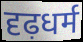
दृढ़धर्म